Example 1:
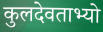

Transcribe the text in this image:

कुलदेवताभ्यो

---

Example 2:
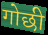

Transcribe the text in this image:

गोछी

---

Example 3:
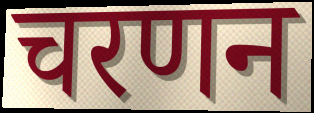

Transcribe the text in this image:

चरणन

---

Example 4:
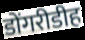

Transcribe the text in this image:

डोंगरीडीह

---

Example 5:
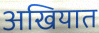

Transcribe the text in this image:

अखियात